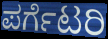
ಪರ್ಗೆಟರಿ